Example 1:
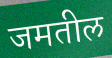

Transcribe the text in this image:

जमतील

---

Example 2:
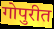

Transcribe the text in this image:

गोपुरीत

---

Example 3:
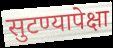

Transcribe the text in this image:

सुटण्यापेक्षा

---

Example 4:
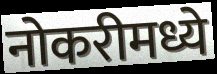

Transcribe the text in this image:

नोकरीमध्ये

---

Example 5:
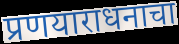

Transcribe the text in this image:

प्रणयाराधनाचा